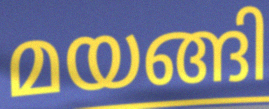
മയങ്ങി